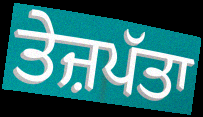
ਤੇਜ਼ਪੱਤਾ